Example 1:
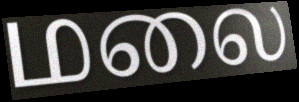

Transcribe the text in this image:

மலை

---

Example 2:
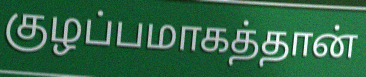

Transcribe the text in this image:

குழப்பமாகத்தான்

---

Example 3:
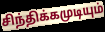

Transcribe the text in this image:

சிந்திக்கமுடியும்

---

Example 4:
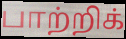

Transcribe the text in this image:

பாற்றிக்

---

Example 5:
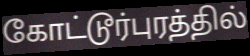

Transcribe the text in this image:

கோட்டூர்புரத்தில்